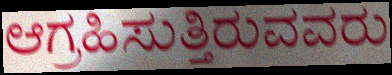
ಆಗ್ರಹಿಸುತ್ತಿರುವವರು